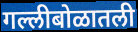
गल्लीबोळातली